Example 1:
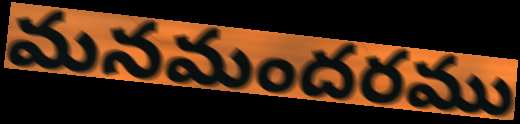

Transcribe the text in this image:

మనమందరము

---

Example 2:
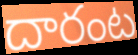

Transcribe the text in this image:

దారంట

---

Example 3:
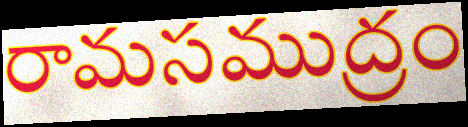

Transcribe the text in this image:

రామసముద్రం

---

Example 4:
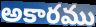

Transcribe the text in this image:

అకారము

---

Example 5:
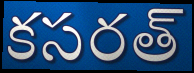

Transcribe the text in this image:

కసరత్